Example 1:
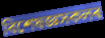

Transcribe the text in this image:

বিশেষজ্ঞসকলৰ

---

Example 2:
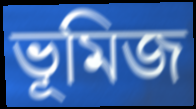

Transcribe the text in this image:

ভূমিজ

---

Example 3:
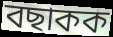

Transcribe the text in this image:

বছাকক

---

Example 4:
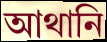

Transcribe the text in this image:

আথানি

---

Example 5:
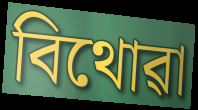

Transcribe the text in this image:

বিথোৱা